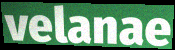
velanae